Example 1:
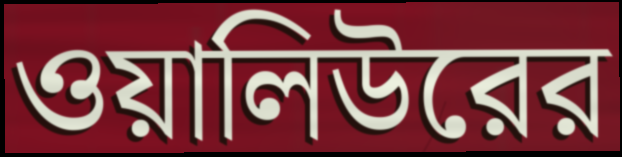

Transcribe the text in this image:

ওয়ালিউরের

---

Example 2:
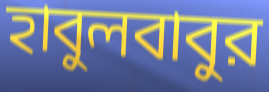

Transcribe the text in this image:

হাবুলবাবুর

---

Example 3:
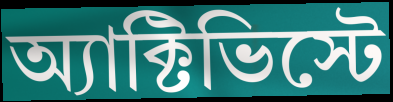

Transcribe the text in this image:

অ্যাক্টিভিস্টে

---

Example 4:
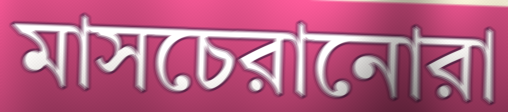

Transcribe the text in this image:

মাসচেরানোরা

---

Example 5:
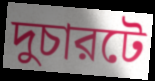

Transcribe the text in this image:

দুচারটে